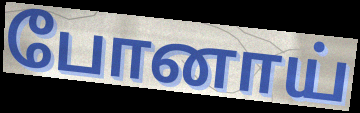
போனாய்